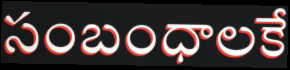
సంబంధాలకే